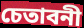
চেতাবনী